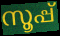
സൂപ്പ്